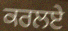
ਕਰਲਏ